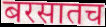
बरसातच